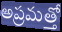
అప్రమత్తో